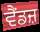
ਵੈਂਡਜ਼